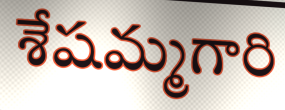
శేషమ్మగారి